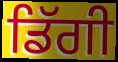
ਡਿੱਗੀ